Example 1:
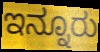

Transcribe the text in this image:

ಇನ್ನೂರು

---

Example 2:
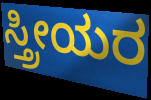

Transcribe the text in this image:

ಸ್ತ್ರೀಯರ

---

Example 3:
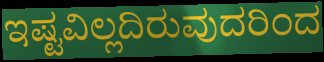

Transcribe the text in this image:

ಇಷ್ಟವಿಲ್ಲದಿರುವುದರಿಂದ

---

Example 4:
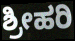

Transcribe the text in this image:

ಶ್ರೀಹರಿ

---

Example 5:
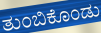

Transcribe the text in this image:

ತುಂಬಿಕೊಂಡು